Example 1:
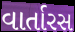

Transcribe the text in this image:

વાર્તારસ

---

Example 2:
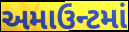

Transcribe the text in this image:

અમાઉન્ટમાં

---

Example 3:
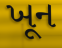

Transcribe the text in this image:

ખૂન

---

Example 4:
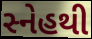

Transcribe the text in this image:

સ્નેહથી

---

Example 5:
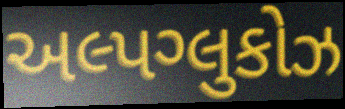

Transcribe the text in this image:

અલ્પગ્લુકોઝ